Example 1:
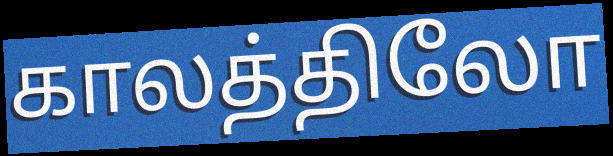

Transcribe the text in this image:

காலத்திலோ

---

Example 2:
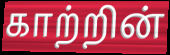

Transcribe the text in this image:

காற்றின்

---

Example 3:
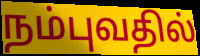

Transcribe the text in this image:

நம்புவதில்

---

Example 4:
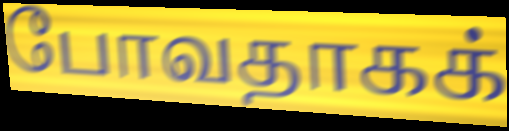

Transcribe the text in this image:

போவதாகக்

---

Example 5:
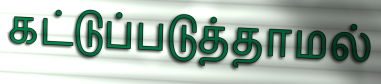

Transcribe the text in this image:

கட்டுப்படுத்தாமல்